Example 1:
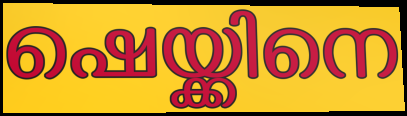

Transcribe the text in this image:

ഷെയ്ക്കിനെ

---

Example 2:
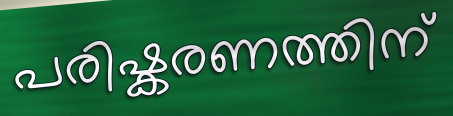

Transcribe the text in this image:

പരിഷ്കരണത്തിന്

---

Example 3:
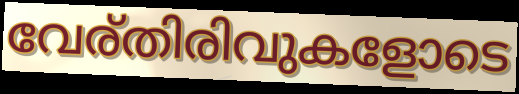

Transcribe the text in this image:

വേര്തിരിവുകളോടെ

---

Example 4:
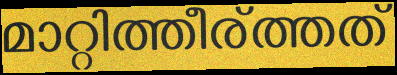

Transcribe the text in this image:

മാറ്റിത്തീര്ത്തത്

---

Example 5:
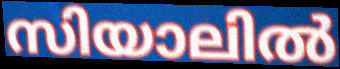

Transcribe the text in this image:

സിയാലിൽ